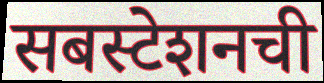
सबस्टेशनची